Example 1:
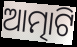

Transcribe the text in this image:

ଆତ୍ମାଟି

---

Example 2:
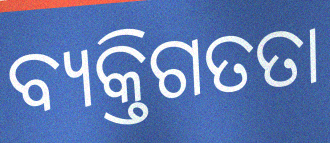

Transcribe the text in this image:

ବ୍ୟକ୍ତିଗତତା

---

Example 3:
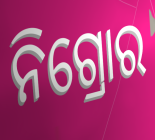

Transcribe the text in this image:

ନିଗ୍ରୋର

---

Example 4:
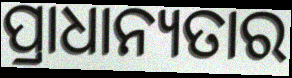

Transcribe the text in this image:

ପ୍ରାଧାନ୍ୟତାର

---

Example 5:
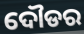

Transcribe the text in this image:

ଦୌଡର